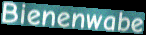
Bienenwabe